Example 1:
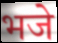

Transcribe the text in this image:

भजे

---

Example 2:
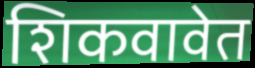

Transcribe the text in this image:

शिकवावेत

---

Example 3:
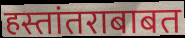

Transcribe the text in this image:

हस्तांतराबाबत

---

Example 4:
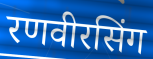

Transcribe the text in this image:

रणवीरसिंग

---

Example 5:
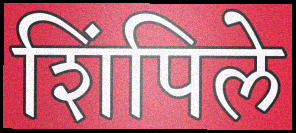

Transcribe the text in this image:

शिंपिले